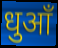
धुआँ